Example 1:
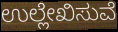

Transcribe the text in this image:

ಉಲ್ಲೇಖಿಸುವೆ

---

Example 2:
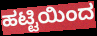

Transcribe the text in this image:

ಹಟ್ಟಿಯಿಂದ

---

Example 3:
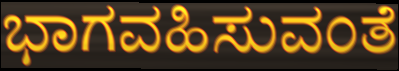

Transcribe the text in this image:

ಭಾಗವಹಿಸುವಂತೆ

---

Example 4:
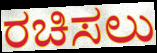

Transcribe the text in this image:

ರಚಿಸಲು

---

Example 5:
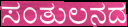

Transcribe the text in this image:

ಸಂತುಲನದ